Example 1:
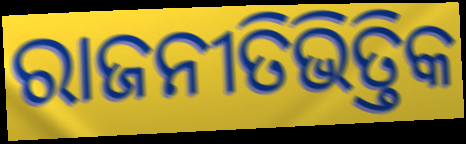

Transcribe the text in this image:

ରାଜନୀତିଭିତ୍ତିକ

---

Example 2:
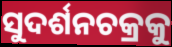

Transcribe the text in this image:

ସୁଦର୍ଶନଚକ୍ରକୁ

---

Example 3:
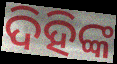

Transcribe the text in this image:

ଦିହିଙ୍କ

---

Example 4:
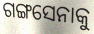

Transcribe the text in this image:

ଗଙ୍ଗସେନାକୁ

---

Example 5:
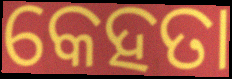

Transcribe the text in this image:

କେହତା